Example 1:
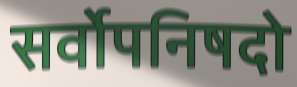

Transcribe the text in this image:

सर्वोपनिषदो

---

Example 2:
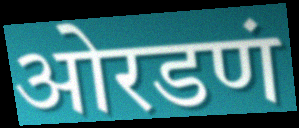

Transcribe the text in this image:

ओरडणं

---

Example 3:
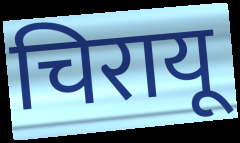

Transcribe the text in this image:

चिरायू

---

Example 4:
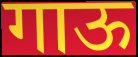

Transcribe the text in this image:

गाऊ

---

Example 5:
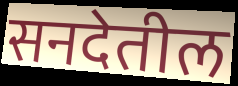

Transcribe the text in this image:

सनदेतील